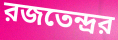
রজতেন্দ্রর